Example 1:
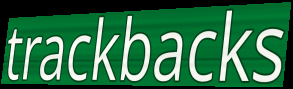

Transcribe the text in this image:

trackbacks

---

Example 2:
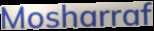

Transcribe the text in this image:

Mosharraf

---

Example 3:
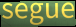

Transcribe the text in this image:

segue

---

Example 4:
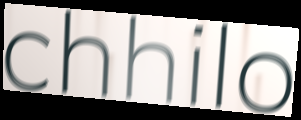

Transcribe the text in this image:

chhilo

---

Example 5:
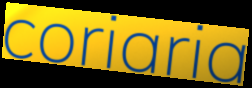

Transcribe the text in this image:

coriaria